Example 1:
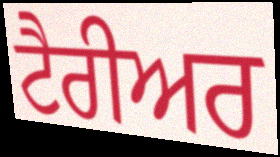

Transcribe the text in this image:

ਟੈਰੀਅਰ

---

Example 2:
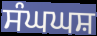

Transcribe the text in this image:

ਸੰਘਘਸ਼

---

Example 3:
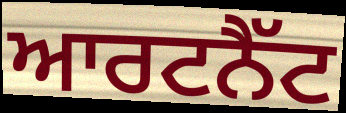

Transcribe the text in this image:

ਆਰਟਨੈੱਟ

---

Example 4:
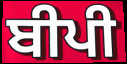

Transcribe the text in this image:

ਬੀਪੀ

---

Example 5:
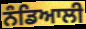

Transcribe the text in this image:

ਨੰਡਿਆਲੀ